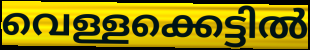
വെള്ളക്കെട്ടിൽ